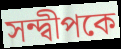
সন্দ্বীপকে